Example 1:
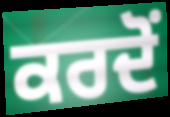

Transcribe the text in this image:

ਕਰਦੋਂ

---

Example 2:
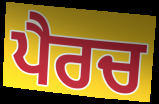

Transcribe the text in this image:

ਪੈਰਚ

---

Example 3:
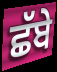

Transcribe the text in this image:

ਛੱਬੇ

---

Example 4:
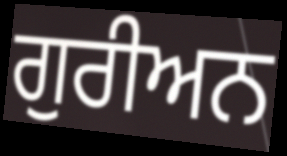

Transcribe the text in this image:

ਗੁਰੀਅਨ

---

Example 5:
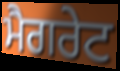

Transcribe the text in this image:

ਮੈਗਰੇਟ